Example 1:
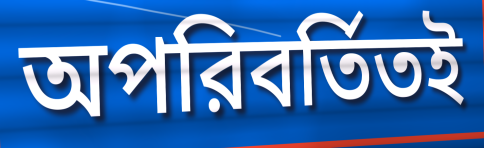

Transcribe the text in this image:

অপরিবর্তিতই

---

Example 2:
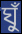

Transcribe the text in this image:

ঘুঁ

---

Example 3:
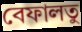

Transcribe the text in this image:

বেফালতু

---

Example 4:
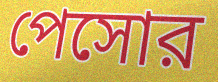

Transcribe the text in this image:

পেসোর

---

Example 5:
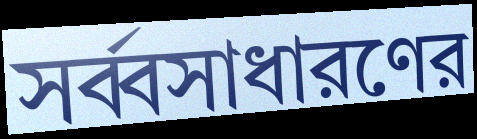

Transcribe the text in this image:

সর্ব্বসাধারণের